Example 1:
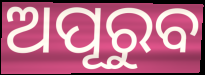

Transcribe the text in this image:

ଅପୂରୁବ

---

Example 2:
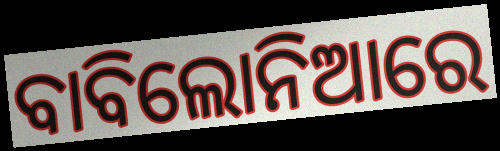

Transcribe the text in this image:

ବାବିଲୋନିଆରେ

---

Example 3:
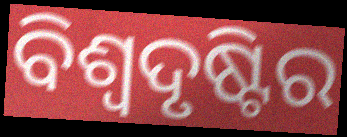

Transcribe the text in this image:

ବିଶ୍ୱଦୃଷ୍ଟିର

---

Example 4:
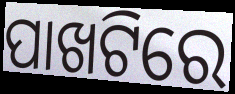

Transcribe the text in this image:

ପାଖଟିରେ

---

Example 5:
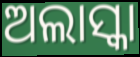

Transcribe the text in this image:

ଅଲାସ୍କା